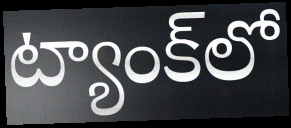
ట్యాంక్‌లో